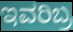
ಇವರಿಬ್ರ